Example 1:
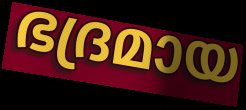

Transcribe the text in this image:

ഭദ്രമായ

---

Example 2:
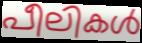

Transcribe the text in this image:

പീലികൾ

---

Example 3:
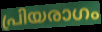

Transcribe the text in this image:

പ്രിയരാഗം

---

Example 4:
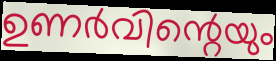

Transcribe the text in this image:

ഉണർവിന്റെയും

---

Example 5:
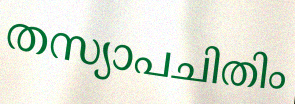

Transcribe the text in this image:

തസ്യാപചിതിം